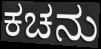
ಕಚನು